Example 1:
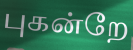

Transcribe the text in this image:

புகன்றே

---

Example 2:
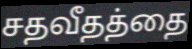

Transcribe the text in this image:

சதவீதத்தை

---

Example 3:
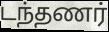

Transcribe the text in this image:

டந்தணர்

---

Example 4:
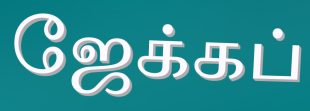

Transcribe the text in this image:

ஜேக்கப்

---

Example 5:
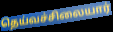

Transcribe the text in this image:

தெய்வச்சிலையார்